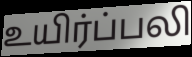
உயிர்ப்பலி